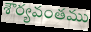
శౌర్యవంతము